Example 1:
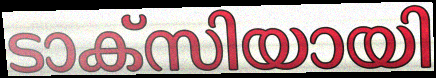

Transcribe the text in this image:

ടാക്സിയായി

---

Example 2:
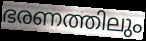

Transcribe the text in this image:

ഭരണത്തിലും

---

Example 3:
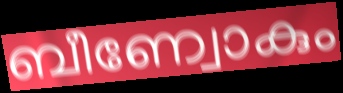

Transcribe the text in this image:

ബീണ്വോകും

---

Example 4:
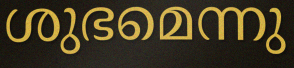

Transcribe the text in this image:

ശുഭമെന്നു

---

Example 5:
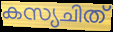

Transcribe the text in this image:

കസ്യചിത്